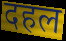
दहल